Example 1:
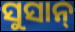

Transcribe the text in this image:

ସୁସାନ୍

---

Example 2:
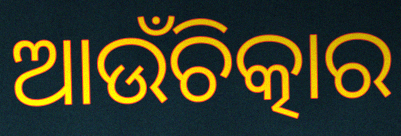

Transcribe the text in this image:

ଆଉଁଚିତ୍କାର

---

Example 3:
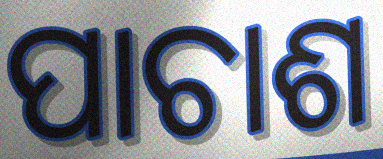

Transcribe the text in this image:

ପାଚାଶ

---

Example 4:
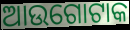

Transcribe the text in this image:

ଆଉଗୋଟାକ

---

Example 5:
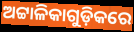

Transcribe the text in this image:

ଅଟ୍ଟାଳିକାଗୁଡ଼ିକରେ